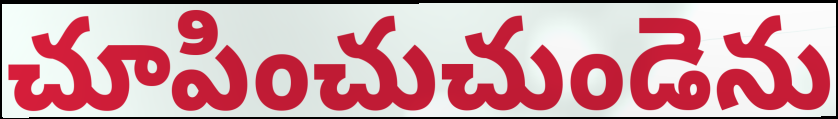
చూపించుచుండెను